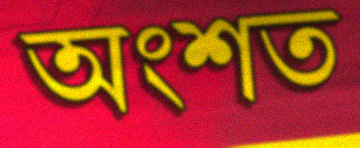
অংশত